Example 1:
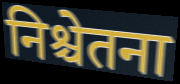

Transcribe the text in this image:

निश्चेतना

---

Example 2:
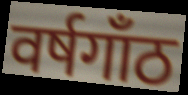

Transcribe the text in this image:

वर्षगाँठ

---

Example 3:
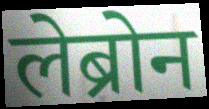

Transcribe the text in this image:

लेब्रोन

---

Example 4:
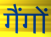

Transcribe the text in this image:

गैंगों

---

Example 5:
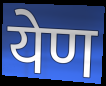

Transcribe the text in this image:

येण